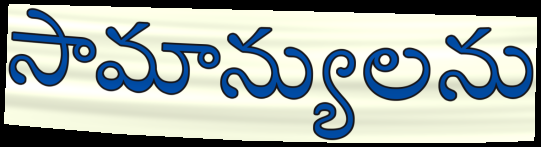
సామాన్యులను